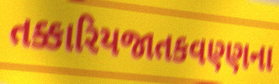
તક્કારિયજાતકવણ્ણના